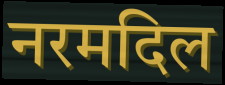
नरमदिल